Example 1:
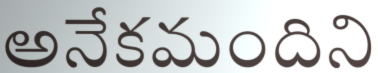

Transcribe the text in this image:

అనేకమందిని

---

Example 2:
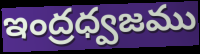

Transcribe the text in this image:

ఇంద్రధ్వజము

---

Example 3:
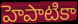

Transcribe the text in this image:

హెపాటికా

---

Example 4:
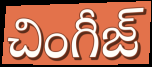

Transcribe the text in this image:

చింగీజ్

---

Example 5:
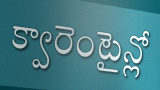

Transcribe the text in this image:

క్వారెంటైన్లో